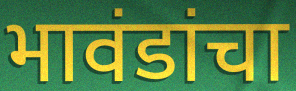
भावंडांचा